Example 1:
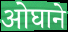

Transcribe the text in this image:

ओघाने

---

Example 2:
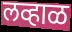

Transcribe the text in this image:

लव्हाळ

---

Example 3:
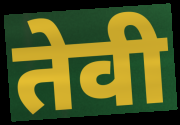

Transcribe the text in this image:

तेवी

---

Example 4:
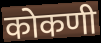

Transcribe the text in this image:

कोकणी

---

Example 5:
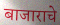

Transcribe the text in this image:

बाजाराचे